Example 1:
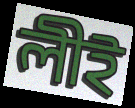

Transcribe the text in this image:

লীই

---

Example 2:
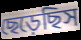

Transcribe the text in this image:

ছেড়েছিস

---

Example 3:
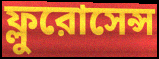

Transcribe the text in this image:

ফ্লুরোসেন্স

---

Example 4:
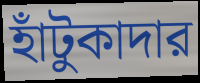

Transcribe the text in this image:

হাঁটুকাদার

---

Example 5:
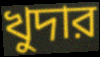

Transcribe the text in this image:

খুদার